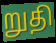
றுதி